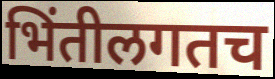
भिंतीलगतच